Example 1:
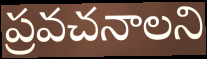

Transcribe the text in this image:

ప్రవచనాలని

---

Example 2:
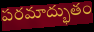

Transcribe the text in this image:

పరమాద్భుతం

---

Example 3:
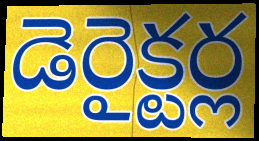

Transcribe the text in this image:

డెరైక్టర్ల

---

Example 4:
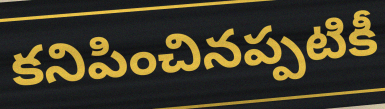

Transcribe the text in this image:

కనిపించినప్పటికీ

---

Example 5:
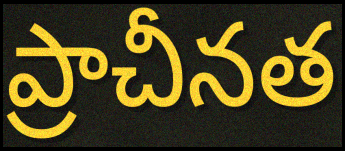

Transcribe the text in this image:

ప్రాచీనత